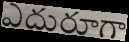
ఎదురూగా